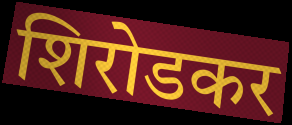
शिरोडकर